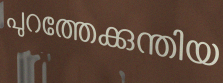
പുറത്തേക്കുന്തിയ